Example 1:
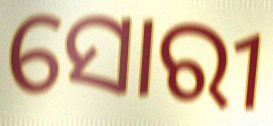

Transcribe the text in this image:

ସୋରୀ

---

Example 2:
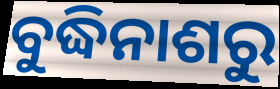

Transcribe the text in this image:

ବୁଦ୍ଧିନାଶରୁ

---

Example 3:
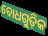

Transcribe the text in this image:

ବୋଧଗୁଡ଼ିକ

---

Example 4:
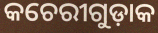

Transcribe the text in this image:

କଚେରୀଗୁଡ଼ାକ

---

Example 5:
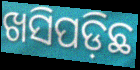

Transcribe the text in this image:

ଖସିପଡ଼ିଛ